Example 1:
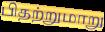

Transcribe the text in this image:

பிதற்றுமாறு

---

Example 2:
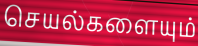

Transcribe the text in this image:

செயல்களையும்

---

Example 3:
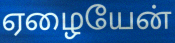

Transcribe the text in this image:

ஏழையேன்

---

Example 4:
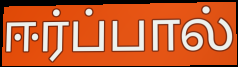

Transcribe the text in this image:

ஈர்ப்பால்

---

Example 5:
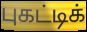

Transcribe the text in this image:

புகட்டிக்